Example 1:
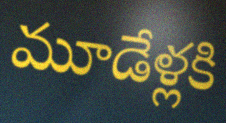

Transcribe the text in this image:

మూడేళ్లకి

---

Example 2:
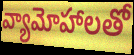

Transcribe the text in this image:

వ్యామోహాలతో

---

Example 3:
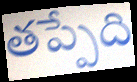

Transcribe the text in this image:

తప్పేది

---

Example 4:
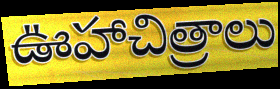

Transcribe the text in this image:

ఊహాచిత్రాలు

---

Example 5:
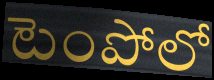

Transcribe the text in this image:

టెంపోలో